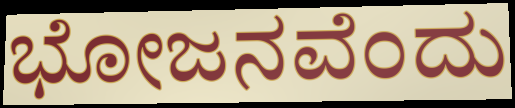
ಭೋಜನವೆಂದು